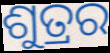
ଶୁତ୍ରର